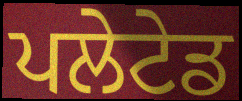
ਪਲੇਟੇਡ